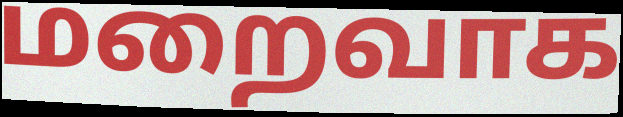
மறைவாக